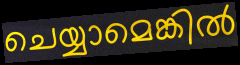
ചെയ്യാമെങ്കിൽ